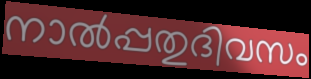
നാൽപ്പതുദിവസം